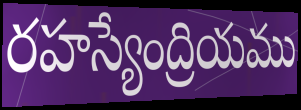
రహస్యేంద్రియము